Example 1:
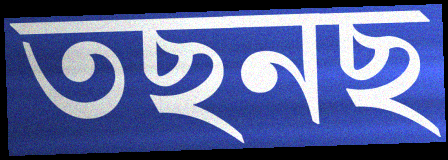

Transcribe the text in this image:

তছনছ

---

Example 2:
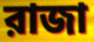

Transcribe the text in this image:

রাজা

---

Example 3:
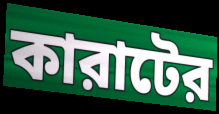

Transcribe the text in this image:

কারাটের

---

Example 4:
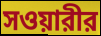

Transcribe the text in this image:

সওয়ারীর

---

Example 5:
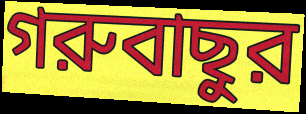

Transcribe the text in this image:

গরুবাছুর